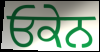
ਓਕੇਨ